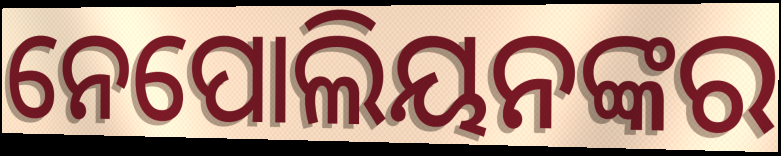
ନେପୋଲିୟନଙ୍କର